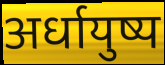
अर्धायुष्य